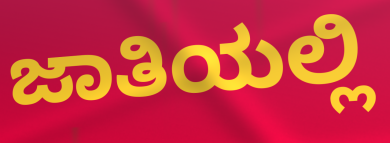
ಜಾತಿಯಲ್ಲಿ